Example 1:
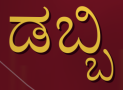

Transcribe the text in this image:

ಡಬ್ಬಿ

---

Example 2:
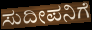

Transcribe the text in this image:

ಸುದೀಪನಿಗೆ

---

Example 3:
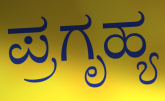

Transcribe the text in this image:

ಪ್ರಗೃಹ್ಯ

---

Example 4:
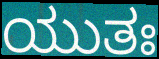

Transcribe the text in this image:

ಯುತಃ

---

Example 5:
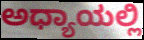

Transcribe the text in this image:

ಅಧ್ಯಾಯಲ್ಲಿ